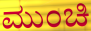
ಮುಂಚಿ